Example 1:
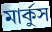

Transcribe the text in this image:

মার্কুস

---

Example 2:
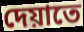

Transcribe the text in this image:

দেয়াতে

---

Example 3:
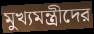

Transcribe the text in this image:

মুখ্যমন্ত্রীদের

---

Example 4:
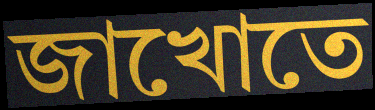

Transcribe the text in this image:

জাখোতে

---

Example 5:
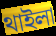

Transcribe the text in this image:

থাইলা